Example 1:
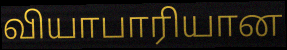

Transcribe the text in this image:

வியாபாரியான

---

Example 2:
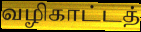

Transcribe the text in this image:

வழிகாட்டத்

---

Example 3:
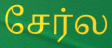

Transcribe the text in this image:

சேர்ல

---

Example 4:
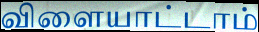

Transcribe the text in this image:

விளையாட்டாம்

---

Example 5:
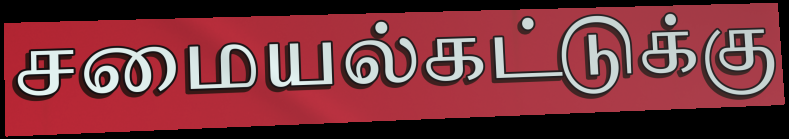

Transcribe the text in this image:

சமையல்கட்டுக்கு